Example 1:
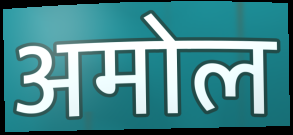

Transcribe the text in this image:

अमोल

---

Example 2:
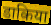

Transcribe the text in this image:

डाकिया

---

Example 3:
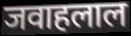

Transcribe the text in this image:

जवाहलाल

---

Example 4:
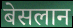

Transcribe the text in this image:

बेसलान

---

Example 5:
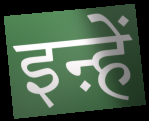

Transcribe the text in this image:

इऩ्हें